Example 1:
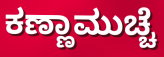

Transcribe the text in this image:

ಕಣ್ಣಾಮುಚ್ಚೆ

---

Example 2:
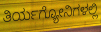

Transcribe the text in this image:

ತಿರ್ಯಗ್ಯೋನಿಗಳಲ್ಲಿ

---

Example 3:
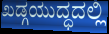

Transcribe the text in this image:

ಖಡ್ಗಯುದ್ಧದಲ್ಲಿ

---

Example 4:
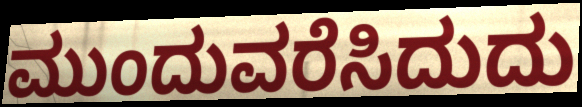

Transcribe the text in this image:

ಮುಂದುವರೆಸಿದುದು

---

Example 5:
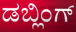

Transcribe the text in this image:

ಡಬ್ಲಿಂಗ್